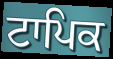
ਟਾਪਿਕ